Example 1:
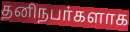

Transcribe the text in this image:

தனிநபர்களாக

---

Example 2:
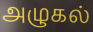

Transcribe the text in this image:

அழுகல்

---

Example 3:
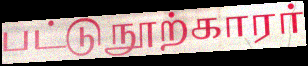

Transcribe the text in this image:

பட்டுநூற்காரர்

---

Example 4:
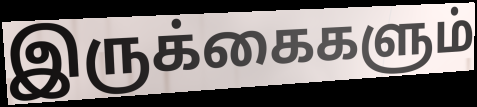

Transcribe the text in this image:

இருக்கைகளும்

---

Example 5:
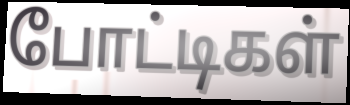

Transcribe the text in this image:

போட்டிகள்